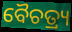
ବୈଚତ୍ର୍ୟ